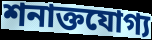
শনাক্তযোগ্য